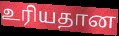
உரியதான